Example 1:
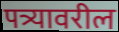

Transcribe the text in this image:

पत्र्यावरील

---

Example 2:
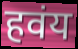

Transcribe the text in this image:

हवंय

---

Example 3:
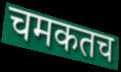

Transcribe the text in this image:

चमकतच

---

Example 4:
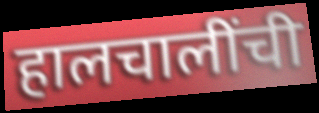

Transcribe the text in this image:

हालचालींची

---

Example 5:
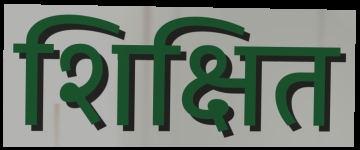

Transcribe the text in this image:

शिक्षित